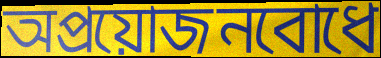
অপ্রয়োজনবোধে